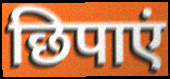
छिपाएं